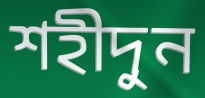
শহীদুন